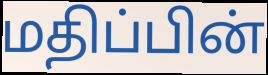
மதிப்பின்